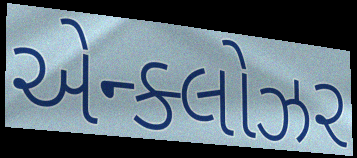
એન્ક્લોઝર